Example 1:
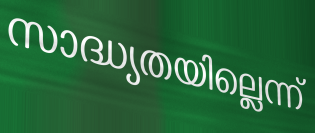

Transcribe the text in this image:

സാദ്ധ്യതയില്ലെന്ന്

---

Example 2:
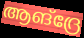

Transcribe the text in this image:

ആങ്ദ്രേ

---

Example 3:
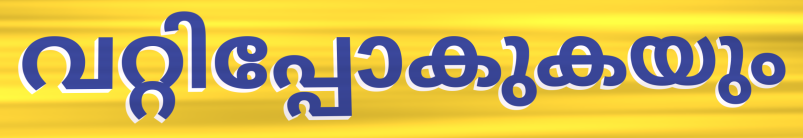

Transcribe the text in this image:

വറ്റിപ്പോകുകയും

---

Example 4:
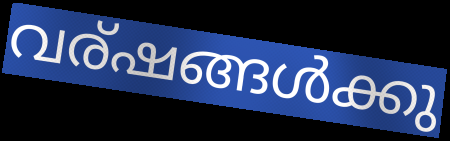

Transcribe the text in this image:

വര്ഷങ്ങൾക്കു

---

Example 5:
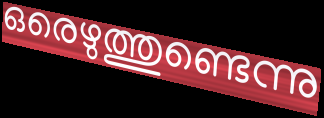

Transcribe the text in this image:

ഒരെഴുത്തുണ്ടെന്നു